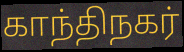
காந்திநகர்